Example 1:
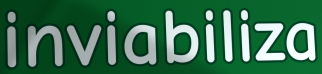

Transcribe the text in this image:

inviabiliza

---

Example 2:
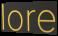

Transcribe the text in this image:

lore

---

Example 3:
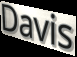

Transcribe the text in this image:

Davis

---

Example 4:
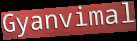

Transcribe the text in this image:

Gyanvimal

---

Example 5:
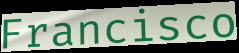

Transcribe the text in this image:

Francisco